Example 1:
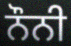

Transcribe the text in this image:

ਨੌਨੀ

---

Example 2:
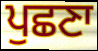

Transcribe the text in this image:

ਪੁਛਣਾ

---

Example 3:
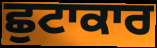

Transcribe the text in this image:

ਛੁਟਾਕਾਰ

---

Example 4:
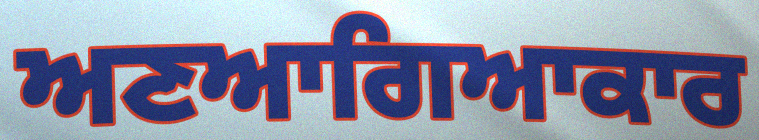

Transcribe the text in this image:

ਅਣਆਗਿਆਕਾਰ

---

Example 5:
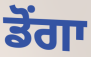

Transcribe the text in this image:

ਡੋਂਗਾ